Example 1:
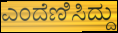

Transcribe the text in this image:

ಎಂದೆಣಿಸಿದ್ದು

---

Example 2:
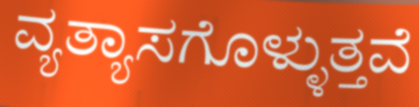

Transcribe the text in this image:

ವ್ಯತ್ಯಾಸಗೊಳ್ಳುತ್ತವೆ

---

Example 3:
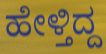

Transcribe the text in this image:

ಹೇಳ್ತಿದ್ದ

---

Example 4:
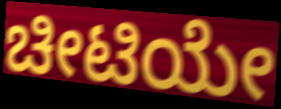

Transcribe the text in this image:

ಚೀಟಿಯೇ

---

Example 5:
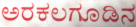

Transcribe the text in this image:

ಅರಕಲಗೂಡಿನ